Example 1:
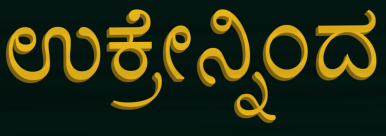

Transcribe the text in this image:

ಉಕ್ರೇನ್ನಿಂದ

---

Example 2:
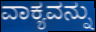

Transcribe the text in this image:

ವಾಕ್ಯವನ್ನು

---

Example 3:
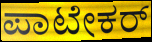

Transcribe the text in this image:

ಪಾಟೇಕರ್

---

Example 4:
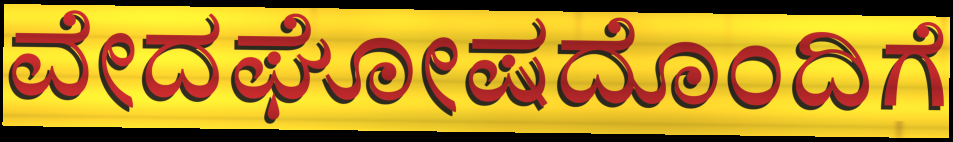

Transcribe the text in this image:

ವೇದಘೋಷದೊಂದಿಗೆ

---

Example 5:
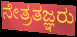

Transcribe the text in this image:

ನೇತ್ರತಜ್ಞರು